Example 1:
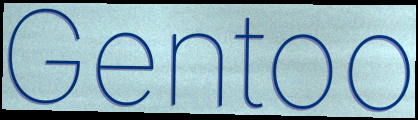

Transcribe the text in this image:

Gentoo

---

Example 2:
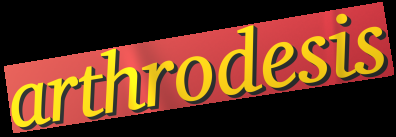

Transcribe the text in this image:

arthrodesis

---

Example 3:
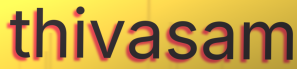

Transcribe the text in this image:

thivasam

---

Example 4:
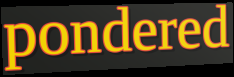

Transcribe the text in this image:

pondered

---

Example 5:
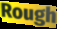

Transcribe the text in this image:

Rough